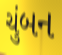
ચુંબન